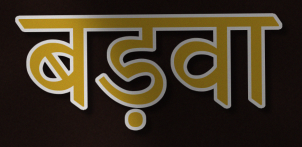
बड़वा